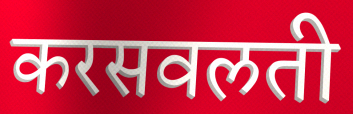
करसवलती